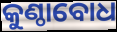
କୁଣ୍ଠାବୋଧ